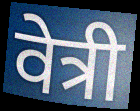
वेत्री